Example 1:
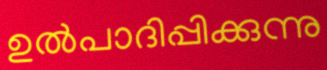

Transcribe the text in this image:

ഉൽപാദിപ്പിക്കുന്നു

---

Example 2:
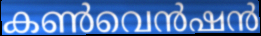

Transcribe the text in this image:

കൺവെൻഷൻ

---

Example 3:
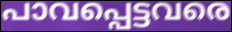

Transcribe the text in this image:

പാവപ്പെട്ടവരെ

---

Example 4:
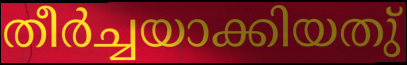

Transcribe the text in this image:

തീർച്ചയാക്കിയതു്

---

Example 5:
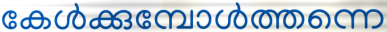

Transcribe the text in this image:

കേൾക്കുമ്പോൾത്തന്നെ